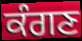
ਕੰਗਣ